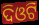
ଦିଓଟି